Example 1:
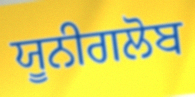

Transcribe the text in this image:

ਯੂਨੀਗਲੋਬ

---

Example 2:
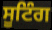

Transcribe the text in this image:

ਸੂਟਿੰਗ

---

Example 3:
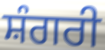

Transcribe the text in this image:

ਸ਼ੰਗਰੀ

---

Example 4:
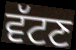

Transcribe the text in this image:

ਵੱਟਣ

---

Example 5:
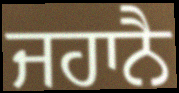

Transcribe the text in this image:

ਜਹਾਨੈ